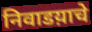
निवाडय़ाचे